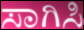
ಸಾಗಿಸಿ